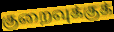
குறைவுக்குக்